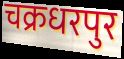
चक्रधरपुर